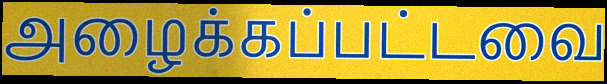
அழைக்கப்பட்டவை